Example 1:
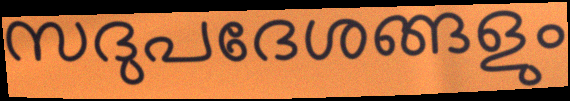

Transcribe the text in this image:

സദുപദേശങ്ങളും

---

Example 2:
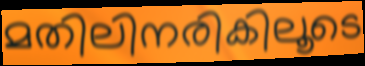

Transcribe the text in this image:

മതിലിനരികിലൂടെ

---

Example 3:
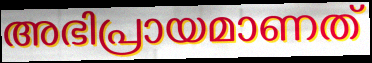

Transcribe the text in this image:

അഭിപ്രായമാണത്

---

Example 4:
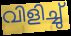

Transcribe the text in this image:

വിളിച്ചു്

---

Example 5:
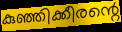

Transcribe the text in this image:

കുഞ്ഞിക്കീരന്റെ